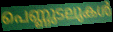
പെണ്ണുടലുകൾ